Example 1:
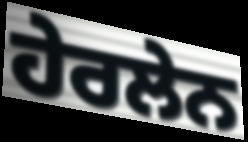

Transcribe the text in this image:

ਹੇਰਲੇਨ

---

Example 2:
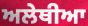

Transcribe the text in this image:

ਅਲੇਥੀਆ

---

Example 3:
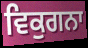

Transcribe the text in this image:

ਵਿਕੁਗਨਾ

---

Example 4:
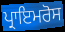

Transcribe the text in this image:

ਪ੍ਰਾਇਮਰੋਸ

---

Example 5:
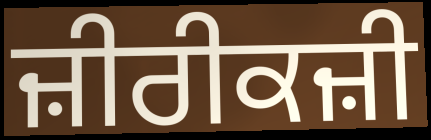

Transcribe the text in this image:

ਜ਼ੀਰੀਕਜ਼ੀ